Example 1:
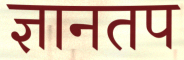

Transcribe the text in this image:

ज्ञानतप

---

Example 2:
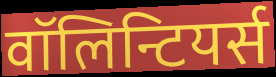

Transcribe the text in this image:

वॉलिन्टियर्स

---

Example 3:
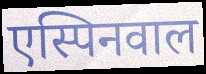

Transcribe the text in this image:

एस्पिनवाल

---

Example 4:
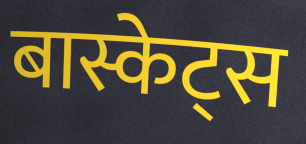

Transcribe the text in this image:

बास्केट्स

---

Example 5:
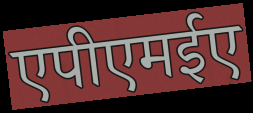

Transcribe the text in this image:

एपीएमईए